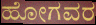
ಹೋಗವರ